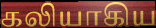
கலியாகிய